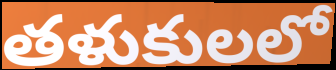
తళుకులలో